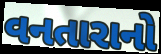
વનતારાનો